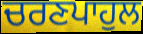
ਚਰਣਪਾਹੁਲ